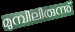
മുമ്പിലിരുന്നു്